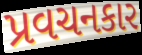
પ્રવચનકાર